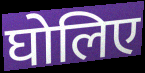
घोलिए